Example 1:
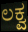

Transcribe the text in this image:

ಲಕ್ವ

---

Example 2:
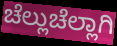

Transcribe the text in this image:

ಚೆಲ್ಲುಚೆಲ್ಲಾಗಿ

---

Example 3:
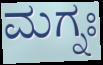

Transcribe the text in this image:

ಮಗ್ನಃ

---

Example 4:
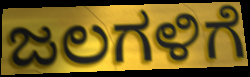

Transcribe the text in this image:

ಜಲಗಳಿಗೆ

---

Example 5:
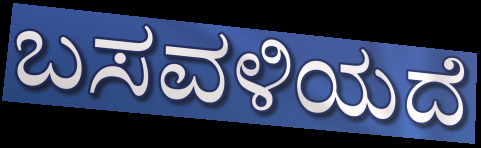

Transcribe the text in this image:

ಬಸವಳಿಯದೆ